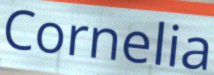
Cornelia